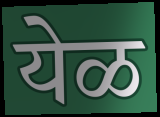
येळ